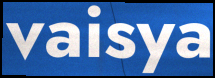
vaisya